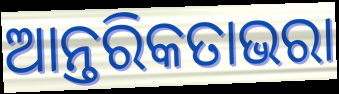
ଆନ୍ତରିକତାଭରା